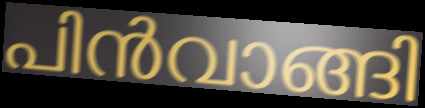
പിൻവാങ്ങി